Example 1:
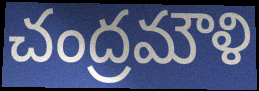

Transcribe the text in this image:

చంద్రమౌళి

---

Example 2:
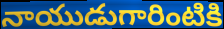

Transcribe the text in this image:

నాయుడుగారింటికి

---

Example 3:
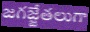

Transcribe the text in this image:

జగజ్జేతలుగా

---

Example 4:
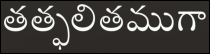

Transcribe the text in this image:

తత్ఫలితముగా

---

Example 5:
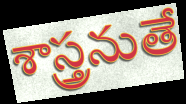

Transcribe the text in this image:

శాస్త్రనుతే